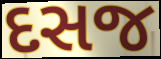
દસજ